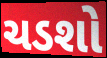
ચડશો